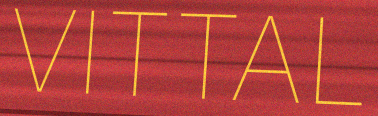
VITTAL